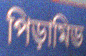
পিড়ামিড